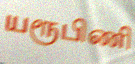
யரூபிணி